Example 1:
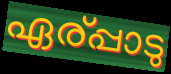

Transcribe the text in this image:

ഏര്പ്പാടു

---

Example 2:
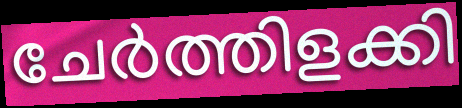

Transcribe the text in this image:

ചേർത്തിളക്കി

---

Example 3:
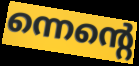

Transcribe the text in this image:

ന്നെന്റെ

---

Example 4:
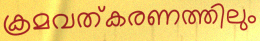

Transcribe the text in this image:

ക്രമവത്കരണത്തിലും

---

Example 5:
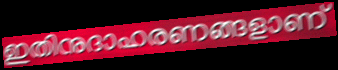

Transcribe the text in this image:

ഇതിനുദാഹരണങ്ങളാണ്